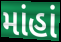
માંહાં